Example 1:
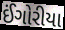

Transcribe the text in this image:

ઈંગોરીયા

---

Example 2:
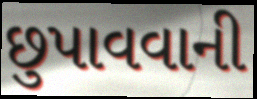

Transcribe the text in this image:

છુપાવવાની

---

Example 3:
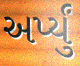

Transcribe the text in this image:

અર્પ્યું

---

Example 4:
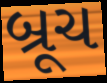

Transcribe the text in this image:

બ્રૂચ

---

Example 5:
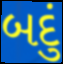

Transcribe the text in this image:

બદું